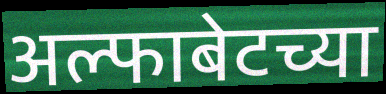
अल्फाबेटच्या